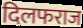
दिलफराज